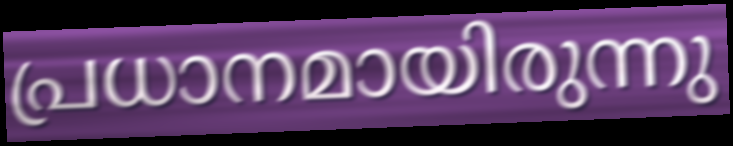
പ്രധാനമായിരുന്നു